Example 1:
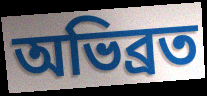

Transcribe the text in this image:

অভিব্রত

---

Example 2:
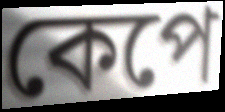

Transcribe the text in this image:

কেপে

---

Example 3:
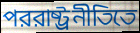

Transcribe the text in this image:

পররাষ্ট্রনীতিতে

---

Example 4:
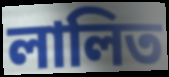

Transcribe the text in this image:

লালিত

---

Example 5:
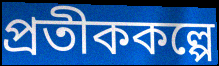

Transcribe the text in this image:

প্রতীককল্পে